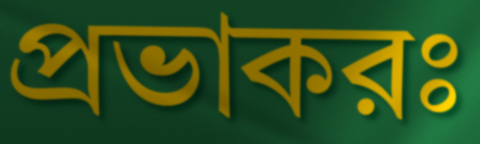
প্রভাকরঃ